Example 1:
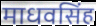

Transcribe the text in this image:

माधवसिंह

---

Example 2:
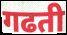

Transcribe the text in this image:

गढती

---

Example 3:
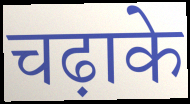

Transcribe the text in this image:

चढ़ाके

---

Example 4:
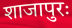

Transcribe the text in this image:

शाजापुरः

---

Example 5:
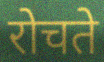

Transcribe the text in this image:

रोचते